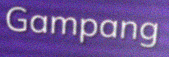
Gampang